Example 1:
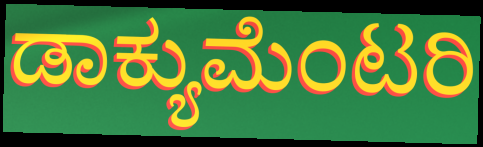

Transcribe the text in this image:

ಡಾಕ್ಯುಮೆಂಟರಿ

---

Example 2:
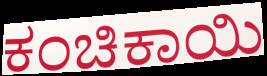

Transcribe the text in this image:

ಕಂಚಿಕಾಯಿ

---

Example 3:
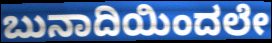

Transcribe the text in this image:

ಬುನಾದಿಯಿಂದಲೇ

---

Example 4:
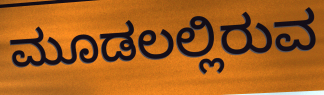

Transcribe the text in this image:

ಮೂಡಲಲ್ಲಿರುವ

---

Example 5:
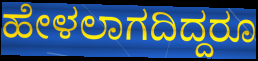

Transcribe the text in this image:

ಹೇಳಲಾಗದಿದ್ದರೂ